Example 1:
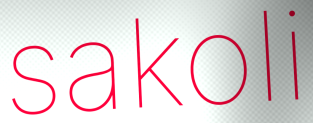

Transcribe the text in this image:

sakoli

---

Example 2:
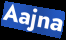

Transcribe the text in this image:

Aajna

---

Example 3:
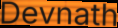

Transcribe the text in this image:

Devnath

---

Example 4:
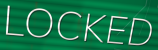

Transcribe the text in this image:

LOCKED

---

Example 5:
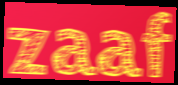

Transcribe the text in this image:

zaaf